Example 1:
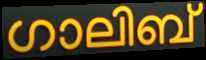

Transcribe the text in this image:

ഗാലിബ്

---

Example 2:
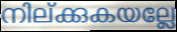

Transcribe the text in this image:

നില്ക്കുകയല്ലേ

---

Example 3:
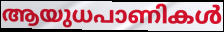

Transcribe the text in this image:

ആയുധപാണികൾ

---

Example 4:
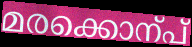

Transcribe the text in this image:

മരക്കൊന്പ്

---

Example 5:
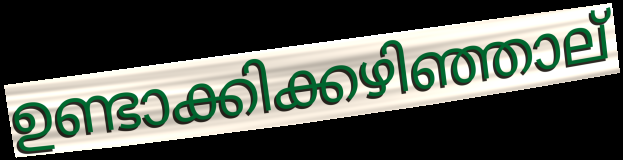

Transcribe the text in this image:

ഉണ്ടാക്കിക്കഴിഞ്ഞാല്